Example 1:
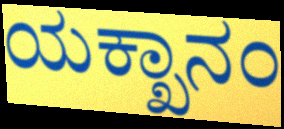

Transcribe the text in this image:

ಯಕ್ಖಾನಂ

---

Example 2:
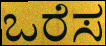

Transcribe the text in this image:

ಒರೆಸ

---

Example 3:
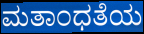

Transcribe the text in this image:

ಮತಾಂಧತೆಯ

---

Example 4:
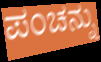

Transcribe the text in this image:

ಪಂಚನ್ನು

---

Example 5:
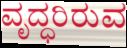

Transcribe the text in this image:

ವೃದ್ಧರಿರುವ